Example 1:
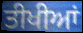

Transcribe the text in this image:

ਤੀਖੀਆਂ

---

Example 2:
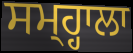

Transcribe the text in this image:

ਸਮ੍ਹ੍ਹਾਲਾ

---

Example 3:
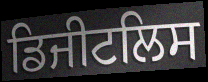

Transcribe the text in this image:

ਡਿਜੀਟਲਿਸ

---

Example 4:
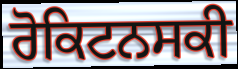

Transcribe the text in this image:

ਰੋਕਿਟਨਸਕੀ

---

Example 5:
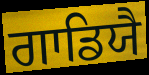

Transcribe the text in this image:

ਗਾਡਿਯੈ